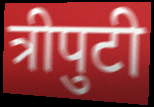
त्रीपुटी